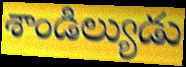
శాండిల్యుడు